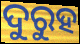
ଦୁରୁହ